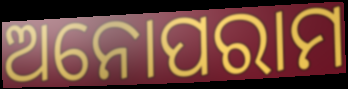
ଅନୋପରାମ